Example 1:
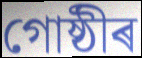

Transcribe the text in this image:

গোষ্ঠীৰ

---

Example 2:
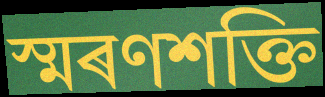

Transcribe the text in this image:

স্মৰণশক্তি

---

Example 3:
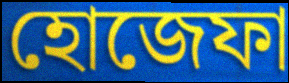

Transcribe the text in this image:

হোজেফা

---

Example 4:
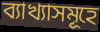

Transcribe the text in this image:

ব্যাখ্যাসমূহে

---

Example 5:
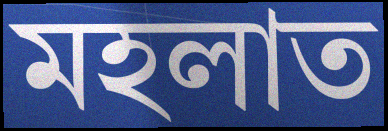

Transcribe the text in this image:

মহলাত